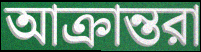
আক্রান্তরা